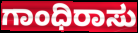
ಗಾಂಧಿರಾಸು